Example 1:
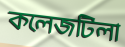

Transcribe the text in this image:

কলেজটিলা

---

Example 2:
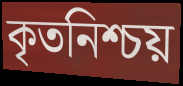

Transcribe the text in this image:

কৃতনিশ্চয়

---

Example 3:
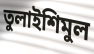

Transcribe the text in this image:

তুলাইশিমুল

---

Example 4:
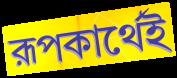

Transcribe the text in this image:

রূপকার্থেই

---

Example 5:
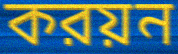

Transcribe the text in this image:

করয়ন